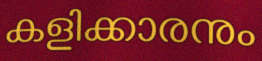
കളിക്കാരനും